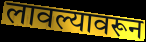
लावल्यावरून